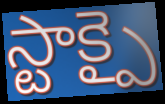
స్టాక్పై